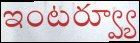
ఇంటర్వ్యూ